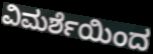
ವಿಮರ್ಶೆಯಿಂದ